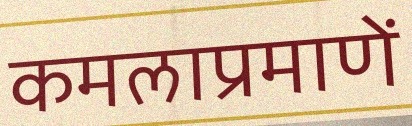
कमलाप्रमाणें